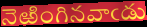
నెఱింగినవాఁడు